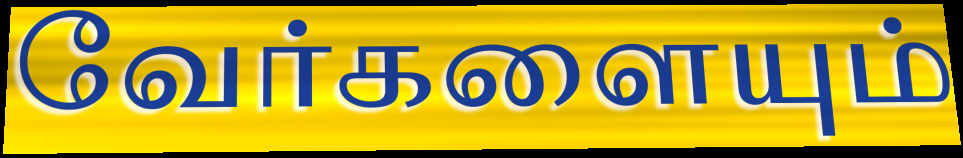
வேர்களையும்